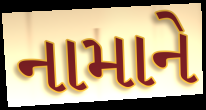
નામાને